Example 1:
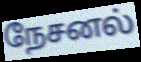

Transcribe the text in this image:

நேசனல்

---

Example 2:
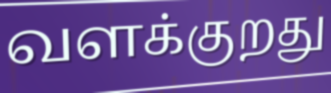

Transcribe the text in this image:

வளக்குறது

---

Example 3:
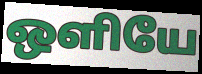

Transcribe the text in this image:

ஒளியே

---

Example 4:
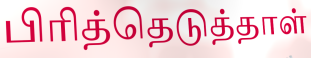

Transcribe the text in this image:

பிரித்தெடுத்தாள்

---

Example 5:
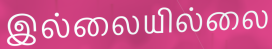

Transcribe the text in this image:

இல்லையில்லை